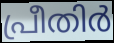
പ്രീതിർ